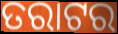
ତରାଟର